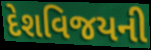
દેશવિજયની